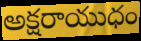
అక్షరాయుధం